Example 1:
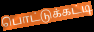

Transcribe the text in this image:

பொட்டுக்கட்டி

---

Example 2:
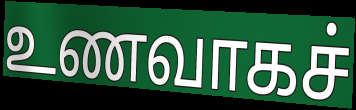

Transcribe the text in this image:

உணவாகச்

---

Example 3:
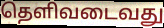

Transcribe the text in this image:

தெளிவடைவது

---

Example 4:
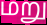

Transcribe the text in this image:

மறு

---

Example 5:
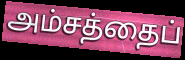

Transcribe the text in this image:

அம்சத்தைப்